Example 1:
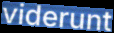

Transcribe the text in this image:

viderunt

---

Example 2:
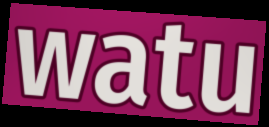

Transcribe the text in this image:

watu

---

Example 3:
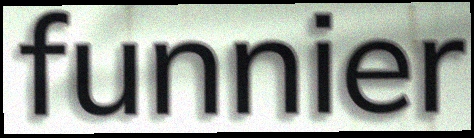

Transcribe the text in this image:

funnier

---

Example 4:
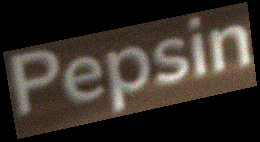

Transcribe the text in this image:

Pepsin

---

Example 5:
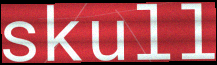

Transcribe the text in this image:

skull